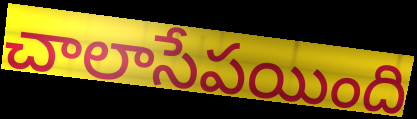
చాలాసేపయింది